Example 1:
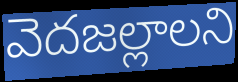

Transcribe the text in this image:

వెదజల్లాలని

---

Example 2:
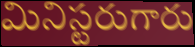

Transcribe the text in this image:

మినిస్టరుగారు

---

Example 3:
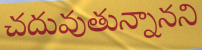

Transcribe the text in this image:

చదువుతున్నానని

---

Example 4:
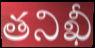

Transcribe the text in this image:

తనిఖీ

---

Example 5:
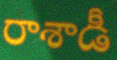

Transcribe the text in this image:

రాశాడీ